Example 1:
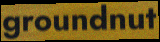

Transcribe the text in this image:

groundnut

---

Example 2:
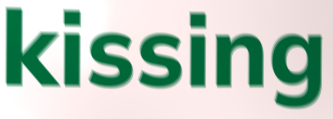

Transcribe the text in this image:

kissing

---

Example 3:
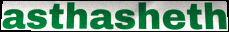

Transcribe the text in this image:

asthasheth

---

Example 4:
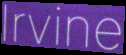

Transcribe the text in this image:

Irvine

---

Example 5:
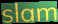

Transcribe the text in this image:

slam